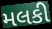
મલકી